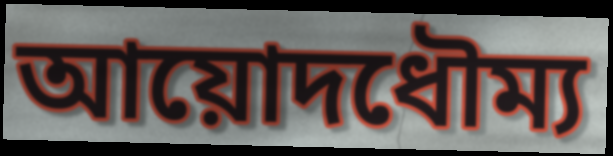
আয়োদধৌম্য